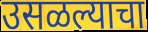
उसळल्याचा